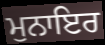
ਮੁਨਾਇਰ